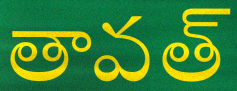
తావత్